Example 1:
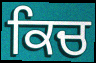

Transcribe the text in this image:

ਕਿਚ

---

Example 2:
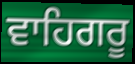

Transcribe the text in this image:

ਵਾਹਿਗਰੂ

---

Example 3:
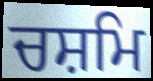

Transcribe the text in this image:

ਚਸ਼ਮਿ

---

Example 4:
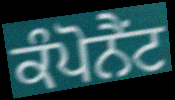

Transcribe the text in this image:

ਕੰਪੋਨੈਂਟ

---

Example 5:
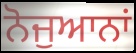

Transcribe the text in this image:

ਨੋਜੁਆਨਾਂ